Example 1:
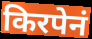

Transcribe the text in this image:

किरपेनं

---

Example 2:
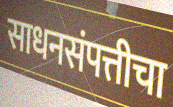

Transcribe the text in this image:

साधनसंपत्तीचा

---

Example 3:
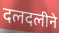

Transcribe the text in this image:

दलदलीने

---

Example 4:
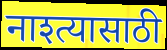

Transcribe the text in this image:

नाश्त्यासाठी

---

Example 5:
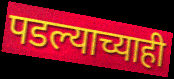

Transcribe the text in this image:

पडल्याच्याही